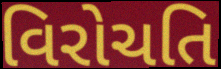
વિરોચતિ